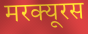
मरक्यूरस